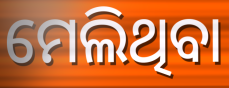
ମେଲିଥିବା